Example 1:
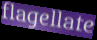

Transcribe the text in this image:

flagellate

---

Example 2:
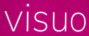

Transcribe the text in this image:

visuo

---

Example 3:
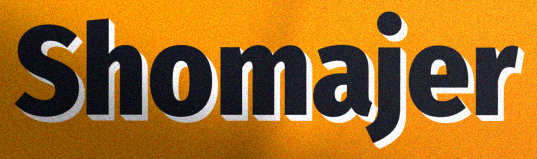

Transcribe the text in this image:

Shomajer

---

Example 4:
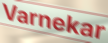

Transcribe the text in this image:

Varnekar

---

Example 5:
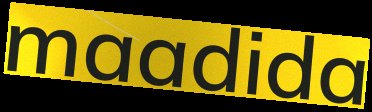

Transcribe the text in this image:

maadida